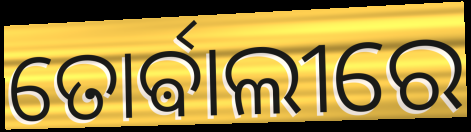
ତୋର୍ଵାଲୀରେ